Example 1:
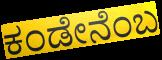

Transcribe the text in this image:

ಕಂಡೇನೆಂಬ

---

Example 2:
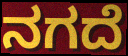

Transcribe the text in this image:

ನಗದೆ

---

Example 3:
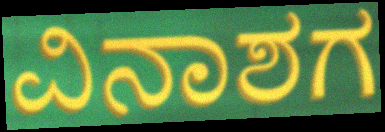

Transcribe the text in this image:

ವಿನಾಶಗ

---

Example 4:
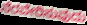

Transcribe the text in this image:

ನೆರವೇರಿಸುವುದು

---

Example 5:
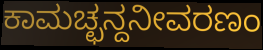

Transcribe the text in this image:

ಕಾಮಚ್ಛನ್ದನೀವರಣಂ